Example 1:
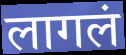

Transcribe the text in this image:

लागलं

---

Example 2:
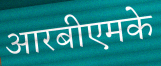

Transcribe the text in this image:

आरबीएमके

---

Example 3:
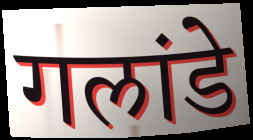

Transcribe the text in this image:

गलांडे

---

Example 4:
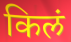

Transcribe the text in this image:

किलं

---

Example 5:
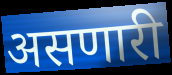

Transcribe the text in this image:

असणारी